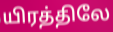
யிரத்திலே